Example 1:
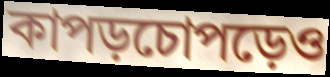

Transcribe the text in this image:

কাপড়চোপড়েও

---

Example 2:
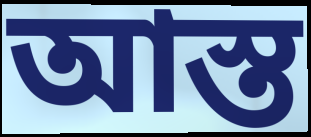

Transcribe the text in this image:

আস্ত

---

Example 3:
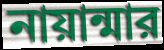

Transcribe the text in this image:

নায়ান্মার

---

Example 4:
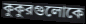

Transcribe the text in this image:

কুকুরগুলোকে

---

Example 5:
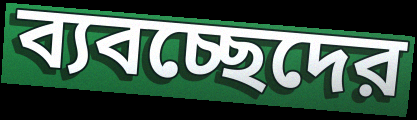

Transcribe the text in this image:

ব্যবচ্ছেদের